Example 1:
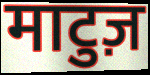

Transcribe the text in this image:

माटुज़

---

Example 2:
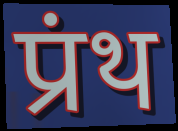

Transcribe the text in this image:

प्रंथ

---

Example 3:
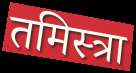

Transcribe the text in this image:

तमिस्त्रा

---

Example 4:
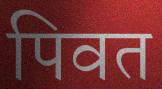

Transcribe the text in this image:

पिवत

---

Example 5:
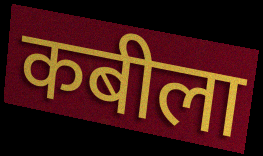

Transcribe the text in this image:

कबीला